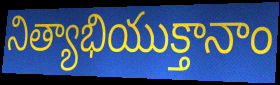
నిత్యాభియుక్తానాం